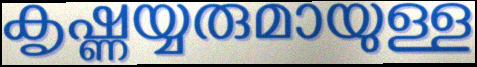
കൃഷ്ണയ്യരുമായുള്ള